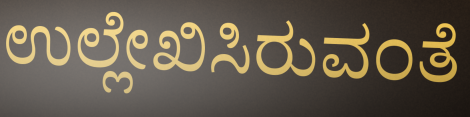
ಉಲ್ಲೇಖಿಸಿರುವಂತೆ